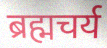
ब्रह्मचर्य